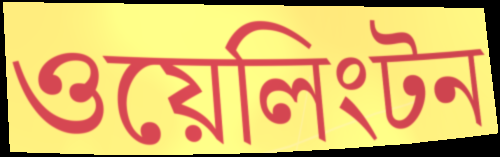
ওয়েলিংটন